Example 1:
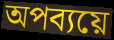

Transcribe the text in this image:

অপব্যয়ে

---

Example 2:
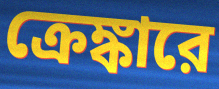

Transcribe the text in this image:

ক্রেঙ্কারে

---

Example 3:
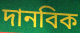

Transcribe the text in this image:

দানবিক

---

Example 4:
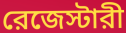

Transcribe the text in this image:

রেজেস্টারী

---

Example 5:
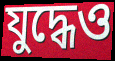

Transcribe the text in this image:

যুদ্ধেও